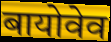
बायोवेव